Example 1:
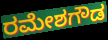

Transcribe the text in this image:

ರಮೇಶಗೌಡ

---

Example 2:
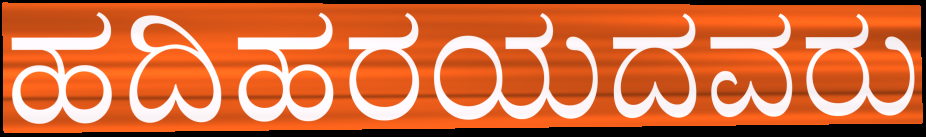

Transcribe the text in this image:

ಹದಿಹರಯದವರು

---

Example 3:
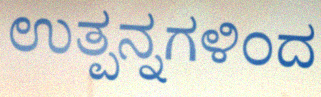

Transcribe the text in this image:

ಉತ್ಪನ್ನಗಳಿಂದ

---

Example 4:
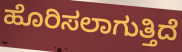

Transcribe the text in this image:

ಹೊರಿಸಲಾಗುತ್ತಿದೆ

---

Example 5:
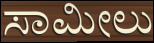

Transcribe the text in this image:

ಸಾಮೀಲು